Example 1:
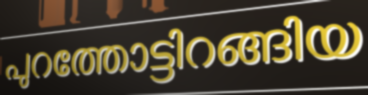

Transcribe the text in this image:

പുറത്തോട്ടിറങ്ങിയ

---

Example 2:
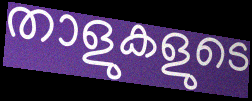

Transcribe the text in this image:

താളുകളുടെ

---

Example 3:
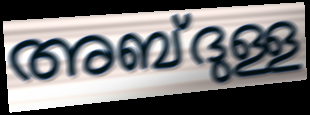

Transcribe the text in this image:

അബ്ദുള്ള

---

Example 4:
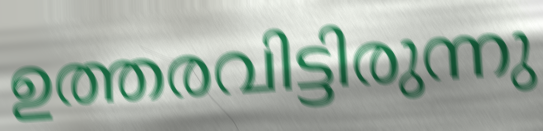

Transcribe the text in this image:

ഉത്തരവിട്ടിരുന്നു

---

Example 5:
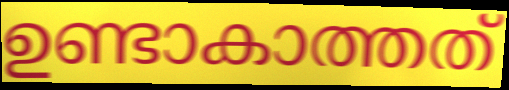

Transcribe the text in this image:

ഉണ്ടാകാത്തത്